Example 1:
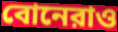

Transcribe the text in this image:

বোনেরাও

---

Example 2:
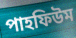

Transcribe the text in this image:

পাহফিউম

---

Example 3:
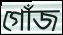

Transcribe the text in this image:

গোঁজ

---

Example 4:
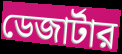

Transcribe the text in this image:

ডেজার্টার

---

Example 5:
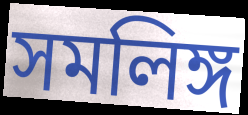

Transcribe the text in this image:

সমলিঙ্গ